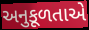
અનુકૂળતાએ